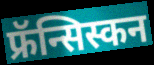
फ्रॅन्सिस्कन